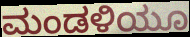
ಮಂಡಳಿಯೂ